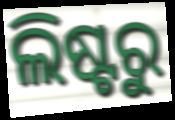
ଲିଷ୍ଟରୁ